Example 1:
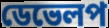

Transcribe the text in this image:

ডেভেলপ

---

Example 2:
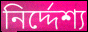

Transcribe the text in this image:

নির্দ্দেশ্য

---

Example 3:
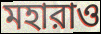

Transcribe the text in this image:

মহারাও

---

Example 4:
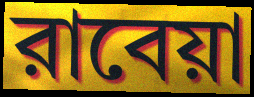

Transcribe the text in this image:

রাবেয়া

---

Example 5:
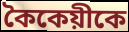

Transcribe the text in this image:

কৈকেয়ীকে